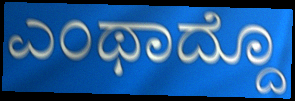
ಎಂಥಾದ್ದೊ